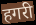
हगरी